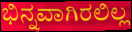
ಭಿನ್ನವಾಗಿರಲಿಲ್ಲ